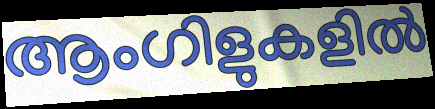
ആംഗിളുകളിൽ